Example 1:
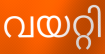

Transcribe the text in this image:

വയറ്റി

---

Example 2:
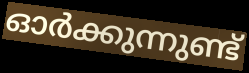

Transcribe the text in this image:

ഓർക്കുന്നുണ്ട്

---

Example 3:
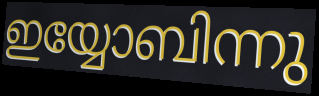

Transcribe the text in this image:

ഇയ്യോബിന്നു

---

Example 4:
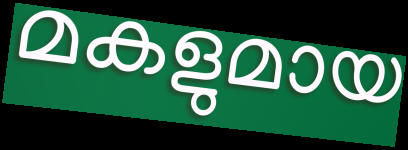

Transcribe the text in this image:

മകളുമായ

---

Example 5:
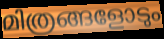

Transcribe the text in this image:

മിത്രങ്ങളോടും